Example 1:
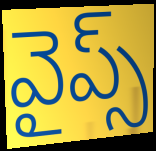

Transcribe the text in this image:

వైప్స్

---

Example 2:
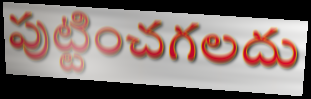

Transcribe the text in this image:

పుట్టించగలదు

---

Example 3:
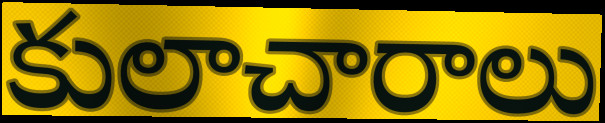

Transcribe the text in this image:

కులాచారాలు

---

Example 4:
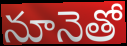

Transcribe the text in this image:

నూనెతో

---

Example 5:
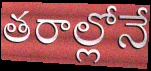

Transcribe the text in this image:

తరాల్లోనే